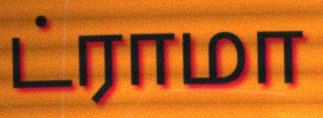
ட்ராமா